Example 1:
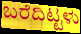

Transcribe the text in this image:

ಬರೆದಿಟ್ಟಳು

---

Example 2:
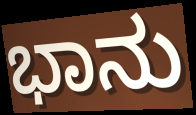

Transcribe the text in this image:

ಭಾನು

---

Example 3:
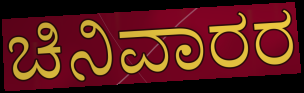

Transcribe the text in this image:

ಚಿನಿವಾರರ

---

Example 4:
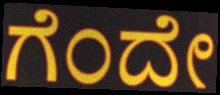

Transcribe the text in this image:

ಗೆಂದೇ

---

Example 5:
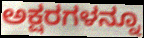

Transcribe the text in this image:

ಅಕ್ಷರಗಳನ್ನೂ